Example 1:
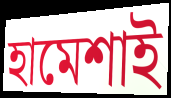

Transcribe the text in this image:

হামেশাই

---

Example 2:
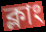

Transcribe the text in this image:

ক্লাং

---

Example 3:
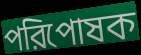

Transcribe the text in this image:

পরিপোষক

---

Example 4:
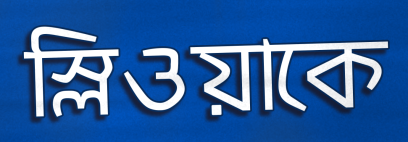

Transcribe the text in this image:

স্লিওয়াকে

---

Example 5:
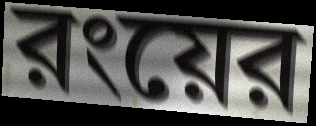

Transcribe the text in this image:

রংয়ের